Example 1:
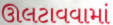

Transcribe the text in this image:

ઊલટાવવામાં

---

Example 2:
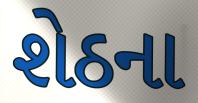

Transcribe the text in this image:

શેઠના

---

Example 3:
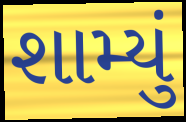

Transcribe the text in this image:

શામ્યું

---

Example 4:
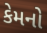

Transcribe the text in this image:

કેમનો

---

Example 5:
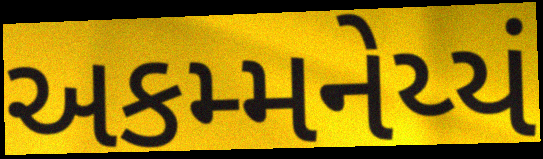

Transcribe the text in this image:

અકમ્મનેય્યં